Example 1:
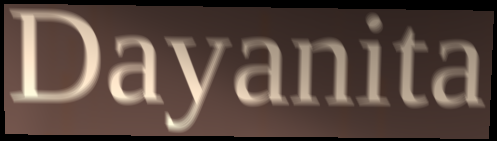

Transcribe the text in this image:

Dayanita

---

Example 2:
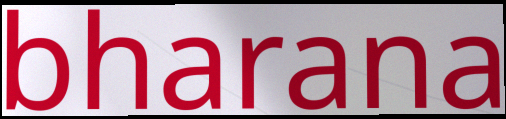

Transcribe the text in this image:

bharana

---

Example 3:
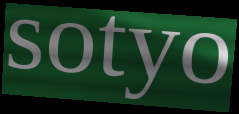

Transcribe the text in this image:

sotyo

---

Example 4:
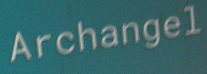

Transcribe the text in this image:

Archangel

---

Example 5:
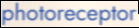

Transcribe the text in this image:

photoreceptor